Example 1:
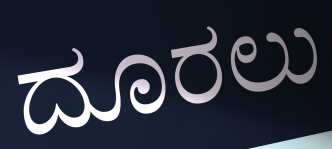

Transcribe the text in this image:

ದೂರಲು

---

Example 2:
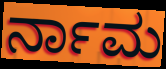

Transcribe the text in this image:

ರ್ನಾಮ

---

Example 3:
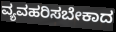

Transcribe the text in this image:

ವ್ಯವಹರಿಸಬೇಕಾದ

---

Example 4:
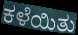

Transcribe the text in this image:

ಕಳೆಯಿತು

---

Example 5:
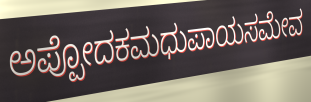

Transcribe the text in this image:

ಅಪ್ಪೋದಕಮಧುಪಾಯಸಮೇವ